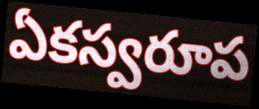
ఏకస్వరూప